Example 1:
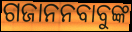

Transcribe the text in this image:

ଗଜାନନବାବୁଙ୍କ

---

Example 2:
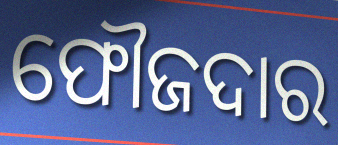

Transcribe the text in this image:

ଫୌଜଦାର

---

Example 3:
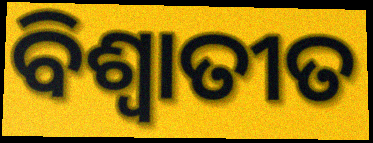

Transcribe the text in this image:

ବିଶ୍ୱାତୀତ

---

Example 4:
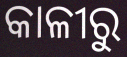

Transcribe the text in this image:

କାଳୀରୁ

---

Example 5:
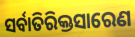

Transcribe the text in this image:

ସର୍ବାତିରିକ୍ତସାରେଣ